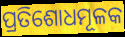
ପ୍ରତିଶୋଧମୂଳକ